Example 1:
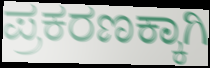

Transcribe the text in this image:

ಪ್ರಕರಣಕ್ಕಾಗಿ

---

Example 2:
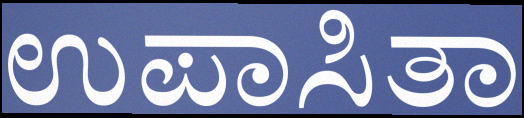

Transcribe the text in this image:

ಉಪಾಸಿತಾ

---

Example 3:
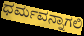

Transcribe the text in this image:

ಧರ್ಮವನ್ನಾಗಲಿ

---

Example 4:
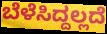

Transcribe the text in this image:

ಬೆಳೆಸಿದ್ದಲ್ಲದೆ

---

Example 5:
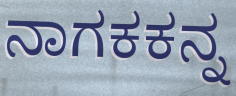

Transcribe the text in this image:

ನಾಗಕಕನ್ನ